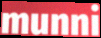
munni